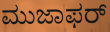
ಮುಜಾಫರ್